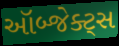
ઑબ્જેક્ટ્સ